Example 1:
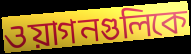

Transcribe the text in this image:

ওয়াগনগুলিকে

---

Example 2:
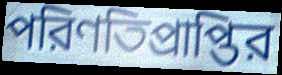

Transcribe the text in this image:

পরিণতিপ্রাপ্তির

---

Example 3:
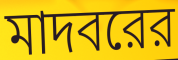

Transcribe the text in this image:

মাদবরের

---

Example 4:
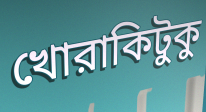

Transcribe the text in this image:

খোরাকিটুকু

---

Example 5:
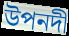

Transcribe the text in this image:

উপনদী